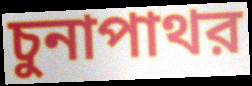
চুনাপাথর